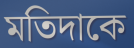
মতিদাকে